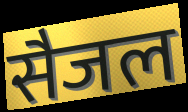
सैजल